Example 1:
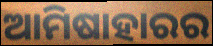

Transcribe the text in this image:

ଆମିଷାହାରର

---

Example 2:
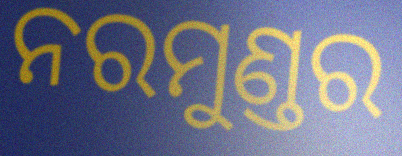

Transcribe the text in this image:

ନରମୁଣ୍ଡର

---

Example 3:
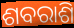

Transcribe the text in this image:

ଶବରାଶି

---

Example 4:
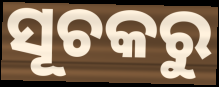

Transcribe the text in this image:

ସୂଚକରୁ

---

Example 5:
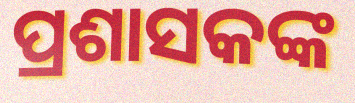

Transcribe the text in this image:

ପ୍ରଶାସକଙ୍କ